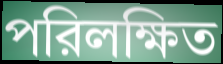
পরিলক্ষিত